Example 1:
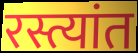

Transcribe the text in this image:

रस्त्यांत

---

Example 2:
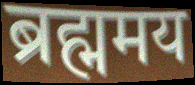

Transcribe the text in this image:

ब्रह्ममय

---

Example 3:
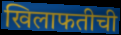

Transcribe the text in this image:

खिलाफतीची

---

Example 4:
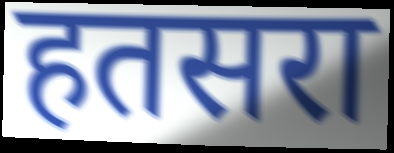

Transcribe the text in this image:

हतसरा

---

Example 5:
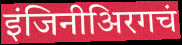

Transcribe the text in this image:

इंजिनीअिरगचं